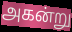
அகன்று